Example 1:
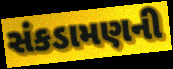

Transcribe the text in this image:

સંકડામણની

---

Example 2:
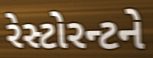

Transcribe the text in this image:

રેસ્ટોરન્ટને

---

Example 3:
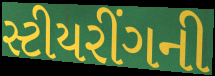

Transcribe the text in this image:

સ્ટીયરીંગની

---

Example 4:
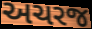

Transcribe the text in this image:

અચરજ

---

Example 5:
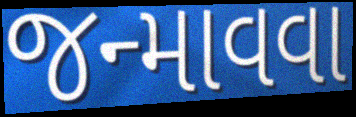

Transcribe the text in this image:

જન્માવવા